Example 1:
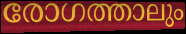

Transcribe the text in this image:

രോഗത്താലും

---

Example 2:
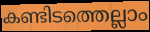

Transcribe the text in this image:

കണ്ടിടത്തെല്ലാം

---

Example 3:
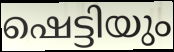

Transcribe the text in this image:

ഷെട്ടിയും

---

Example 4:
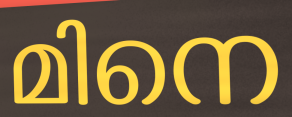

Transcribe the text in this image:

മിനെ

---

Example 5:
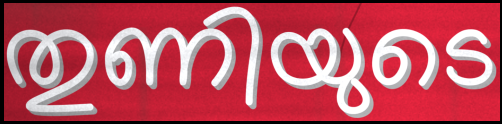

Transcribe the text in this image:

തുണിയുടെ